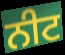
ਨੀਟ